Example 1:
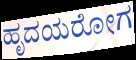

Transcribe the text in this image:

ಹೃದಯರೋಗ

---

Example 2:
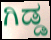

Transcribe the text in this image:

ಗಿಡ್ಡ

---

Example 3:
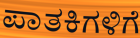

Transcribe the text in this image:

ಪಾತಕಿಗಳಿಗೆ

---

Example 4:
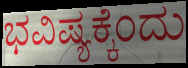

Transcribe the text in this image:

ಭವಿಷ್ಯಕ್ಕೆಂದು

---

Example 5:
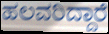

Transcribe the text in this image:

ಹಲವರಿದ್ದಾರೆ